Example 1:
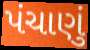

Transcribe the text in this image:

પંચાણું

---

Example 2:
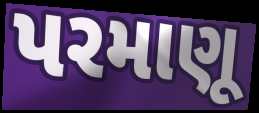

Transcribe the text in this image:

પરમાણૂ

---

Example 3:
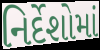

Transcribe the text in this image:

નિર્દેશોમાં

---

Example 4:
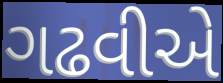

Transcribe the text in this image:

ગઢવીએ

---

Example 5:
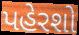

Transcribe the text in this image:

પહેરશો